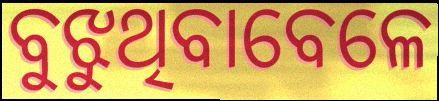
ବୁଝୁଥିବାବେଳେ